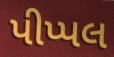
પીપ્પલ